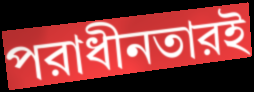
পরাধীনতারই